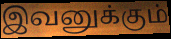
இவனுக்கும்